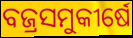
ବଜ୍ରସମୁକୀର୍ଷେ